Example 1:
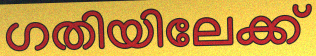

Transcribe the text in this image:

ഗതിയിലേക്ക്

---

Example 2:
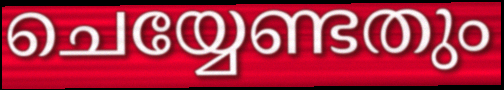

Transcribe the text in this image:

ചെയ്യേണ്ടതും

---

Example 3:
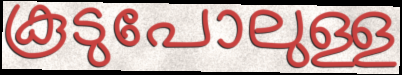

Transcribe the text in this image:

കൂടുപോലുള്ള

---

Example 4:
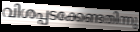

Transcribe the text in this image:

വിശപ്പടക്കേണ്ടതിന്നു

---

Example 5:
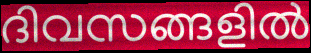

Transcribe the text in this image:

ദിവസങ്ങളിൽ